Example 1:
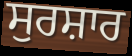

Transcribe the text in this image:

ਸੁਰਸ਼ਾਰ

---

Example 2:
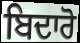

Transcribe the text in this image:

ਬਿਦਾਰੋ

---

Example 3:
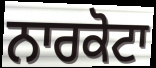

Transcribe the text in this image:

ਨਾਰਕੋਟਾ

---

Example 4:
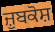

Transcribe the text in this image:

ਜ਼ੁਬਕੋਸ਼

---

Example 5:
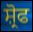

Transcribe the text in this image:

ਸ਼੍ਰੋਫ